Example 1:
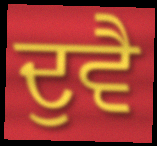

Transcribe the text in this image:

ਦੁਵੈ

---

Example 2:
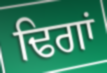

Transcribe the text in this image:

ਢਿਗਾਂ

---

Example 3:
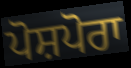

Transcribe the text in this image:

ਪੋਸ਼ਪੋਰਾ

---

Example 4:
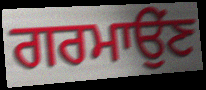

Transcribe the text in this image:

ਗਰਮਾਉਂਣ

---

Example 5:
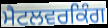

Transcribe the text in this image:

ਮੈਟਲਵਰਕਿੰਗ